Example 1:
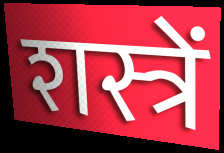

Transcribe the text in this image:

शस्त्रें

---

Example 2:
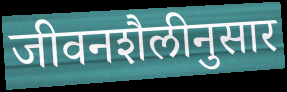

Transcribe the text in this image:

जीवनशैलीनुसार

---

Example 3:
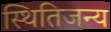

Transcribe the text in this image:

स्थितिजन्य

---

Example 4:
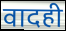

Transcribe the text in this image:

वादही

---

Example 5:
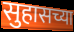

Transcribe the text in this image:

सुहासच्या